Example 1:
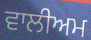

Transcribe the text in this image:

ਵਾਲੀਅਮ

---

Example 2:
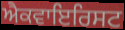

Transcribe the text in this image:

ਐਕਵਾਇਰਿਸਟ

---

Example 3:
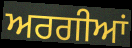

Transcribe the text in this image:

ਅਰਗੀਆਂ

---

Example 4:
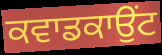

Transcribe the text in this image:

ਕਵਾਡਕਾਉਂਟ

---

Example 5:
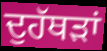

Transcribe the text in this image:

ਦੁਹੱਥੜਾਂ